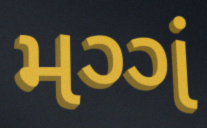
મગ્ગં